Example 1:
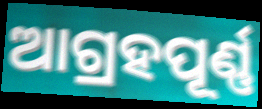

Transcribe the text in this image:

ଆଗ୍ରହପୂର୍ଣ୍ଣ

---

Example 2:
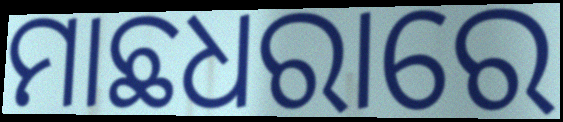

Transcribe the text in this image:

ମାଛଧରାରେ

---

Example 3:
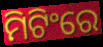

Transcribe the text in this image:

ମିଟିଂରେ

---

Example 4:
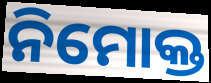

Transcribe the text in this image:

ନିମୋକ୍ତ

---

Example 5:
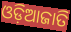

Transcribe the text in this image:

ଓଡ଼ିଆଜାତି